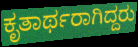
ಕೃತಾರ್ಥರಾಗಿದ್ದರು